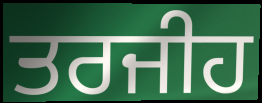
ਤਰਜੀਹ